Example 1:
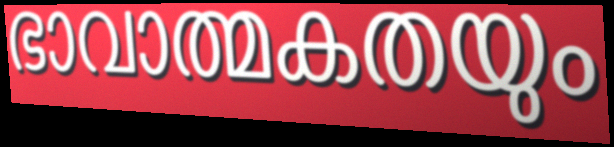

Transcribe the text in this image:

ഭാവാത്മകതയും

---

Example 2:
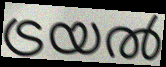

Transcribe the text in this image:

ട്രയൽ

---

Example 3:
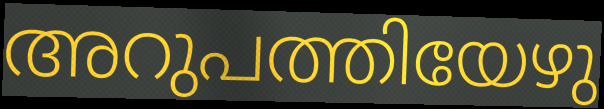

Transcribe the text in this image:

അറുപത്തിയേഴു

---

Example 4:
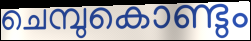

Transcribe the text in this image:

ചെമ്പുകൊണ്ടും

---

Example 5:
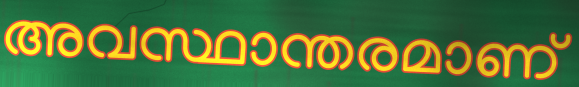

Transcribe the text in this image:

അവസ്ഥാന്തരമാണ്